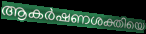
ആകർഷണശക്തിയെ